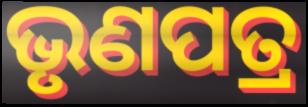
ଭୃଣପତ୍ର